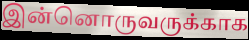
இன்னொருவருக்காக